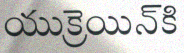
యుక్రెయిన్‌కి